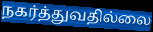
நகர்த்துவதில்லை